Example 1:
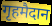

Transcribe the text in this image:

गृहमैदान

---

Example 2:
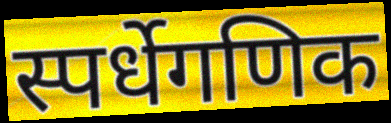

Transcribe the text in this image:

स्पर्धेगणिक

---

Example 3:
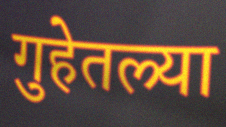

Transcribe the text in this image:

गुहेतल्या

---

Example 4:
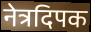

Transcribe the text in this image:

नेत्रदिपक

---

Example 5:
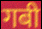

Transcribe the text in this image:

गबी